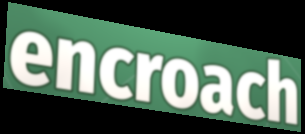
encroach